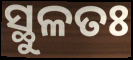
ସ୍ଥୁଳତଃ